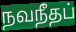
நவநீதப்